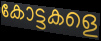
കോട്ടകളെ